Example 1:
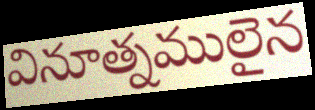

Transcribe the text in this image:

వినూత్నములైన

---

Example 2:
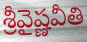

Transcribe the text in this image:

శ్రీవైష్ణవీతి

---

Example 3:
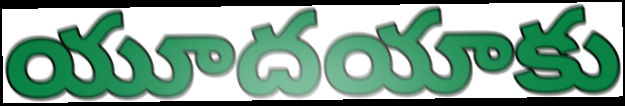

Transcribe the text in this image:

యూదయాకు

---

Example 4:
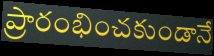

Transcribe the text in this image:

ప్రారంభించకుండానే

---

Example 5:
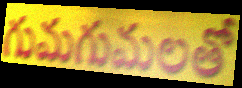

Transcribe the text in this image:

గుమగుమలతో